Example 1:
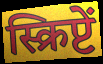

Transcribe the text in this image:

स्क्रिप्टें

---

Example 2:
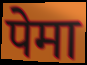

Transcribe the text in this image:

पेमा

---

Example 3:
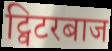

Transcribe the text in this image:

ट्विटरबाज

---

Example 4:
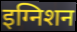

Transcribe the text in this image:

इग्निशन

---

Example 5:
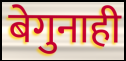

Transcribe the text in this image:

बेगुनाही